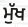
ਮੁੱਖ